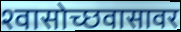
श्वासोच्छवासावर